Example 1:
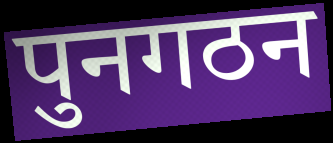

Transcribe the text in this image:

पुनगठन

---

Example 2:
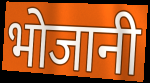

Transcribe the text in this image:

भोजानी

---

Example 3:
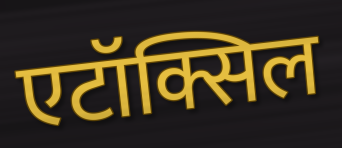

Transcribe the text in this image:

एटॉक्सिल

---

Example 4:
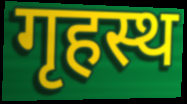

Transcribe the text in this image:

गृहस्थ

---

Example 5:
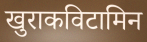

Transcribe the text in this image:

खुराकविटामिन